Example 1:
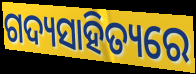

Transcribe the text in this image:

ଗଦ୍ୟସାହିତ୍ୟରେ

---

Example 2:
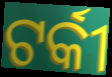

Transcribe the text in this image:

ଟର୍କୀ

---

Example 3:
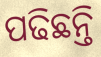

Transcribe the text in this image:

ପଢିଛନ୍ତି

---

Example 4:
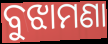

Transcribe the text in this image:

ବୁଝାମଣା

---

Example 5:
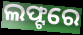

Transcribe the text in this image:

ଲଫ୍ଟରେ